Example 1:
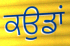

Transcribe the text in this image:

ਕਉਡਾਂ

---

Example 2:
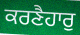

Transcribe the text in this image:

ਕਰਣੈਹਾਰੁ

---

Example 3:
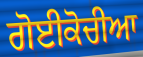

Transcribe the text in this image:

ਗੋਈਕੋਚੀਆ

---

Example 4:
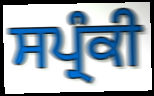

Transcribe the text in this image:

ਸਪ੍ਰੰਕੀ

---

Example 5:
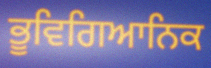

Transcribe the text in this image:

ਭੂਵਿਗਿਆਨਿਕ